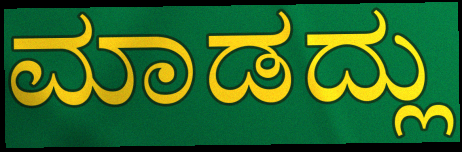
ಮಾಡದ್ಲು